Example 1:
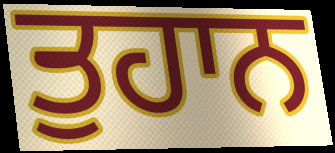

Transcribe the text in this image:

ਤੁਹਾਨ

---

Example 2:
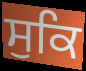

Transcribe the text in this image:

ਸੁਕਿ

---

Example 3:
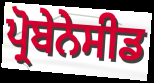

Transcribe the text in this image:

ਪ੍ਰੋਬੇਨੇਸੀਡ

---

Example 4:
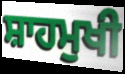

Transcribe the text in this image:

ਸ਼ਾਹਮੁਖੀ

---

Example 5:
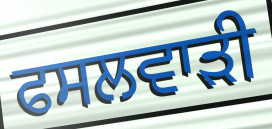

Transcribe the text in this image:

ਫਸਲਵਾੜੀ